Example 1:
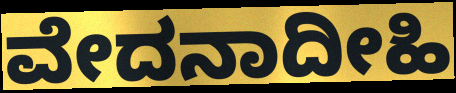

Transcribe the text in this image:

ವೇದನಾದೀಹಿ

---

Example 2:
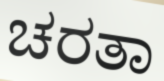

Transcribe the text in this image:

ಚರತಾ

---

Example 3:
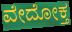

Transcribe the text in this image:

ವೇದೋಕ್ತ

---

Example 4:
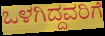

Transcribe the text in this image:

ಒಳಗಿದ್ದವರಿಗೆ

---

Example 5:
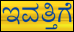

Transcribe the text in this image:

ಇವತ್ತಿಗೆ